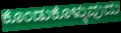
ಕೊಂಡುಕೊಳ್ಳುವುದು